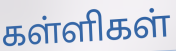
கள்ளிகள்